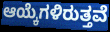
ಆಯ್ಕೆಗಳಿರುತ್ತವೆ